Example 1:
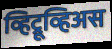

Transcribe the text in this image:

व्हिट्रूव्हिअस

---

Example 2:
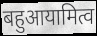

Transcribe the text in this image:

बहुआयामित्व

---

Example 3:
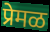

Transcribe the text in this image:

प्रेमळ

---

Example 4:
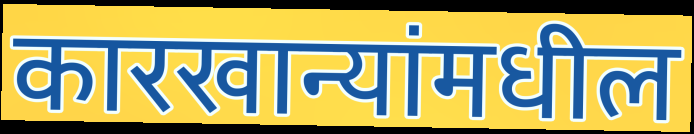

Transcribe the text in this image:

कारखान्यांमधील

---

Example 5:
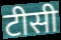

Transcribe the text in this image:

टीसी